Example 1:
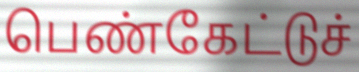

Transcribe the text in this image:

பெண்கேட்டுச்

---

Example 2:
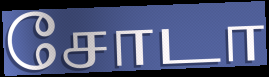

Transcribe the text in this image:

சோடா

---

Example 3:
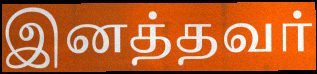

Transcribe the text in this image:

இனத்தவர்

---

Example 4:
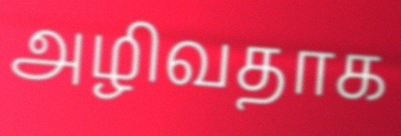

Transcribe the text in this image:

அழிவதாக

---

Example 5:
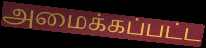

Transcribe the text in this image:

அமைக்கப்பட்ட